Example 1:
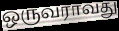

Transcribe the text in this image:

ஒருவராவது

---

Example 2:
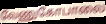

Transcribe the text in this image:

வேணுகோபாலை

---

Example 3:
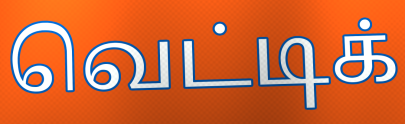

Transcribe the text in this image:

வெட்டிக்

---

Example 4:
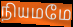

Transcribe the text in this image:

நியமமே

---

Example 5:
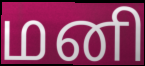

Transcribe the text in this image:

மனி